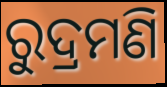
ରୁଦ୍ରମଣି